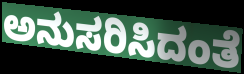
ಅನುಸರಿಸಿದಂತೆ